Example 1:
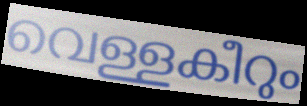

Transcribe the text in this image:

വെള്ളകീറും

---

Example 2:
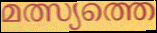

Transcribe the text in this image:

മത്സ്യത്തെ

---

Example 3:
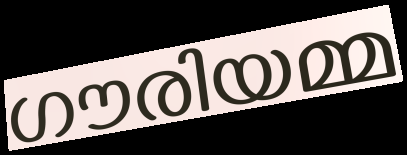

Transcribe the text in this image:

ഗൗരിയമ്മ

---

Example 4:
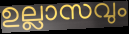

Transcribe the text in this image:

ഉല്ലാസവും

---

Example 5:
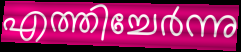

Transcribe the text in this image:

എത്തിച്ചേർന്നു